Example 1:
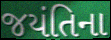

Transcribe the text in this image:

જયંતિના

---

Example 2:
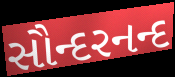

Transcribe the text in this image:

સૌન્દરનન્દ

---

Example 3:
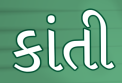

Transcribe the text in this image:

કાંતી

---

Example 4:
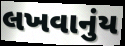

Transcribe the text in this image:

લખવાનુંય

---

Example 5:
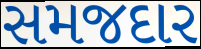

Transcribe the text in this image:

સમજદાર